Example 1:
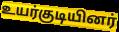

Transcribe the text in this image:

உயர்குடியினர்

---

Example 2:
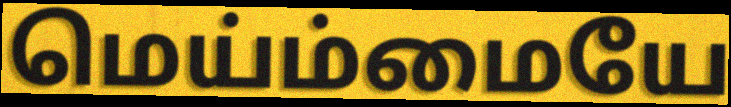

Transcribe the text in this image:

மெய்ம்மையே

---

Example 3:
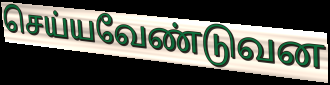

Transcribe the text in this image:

செய்யவேண்டுவன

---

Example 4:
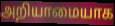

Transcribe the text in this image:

அறியாமையாக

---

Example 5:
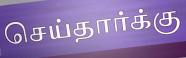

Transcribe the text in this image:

செய்தார்க்கு